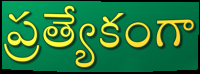
ప్రత్యేకంగా